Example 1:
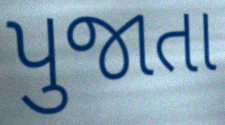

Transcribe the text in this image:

પુજાતા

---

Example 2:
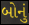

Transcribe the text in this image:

બોનું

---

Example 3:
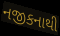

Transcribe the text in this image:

નજીકનાથી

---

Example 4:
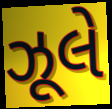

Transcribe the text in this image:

ઝૂલે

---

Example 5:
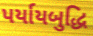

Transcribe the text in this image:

પર્યાયબુદ્ધિ